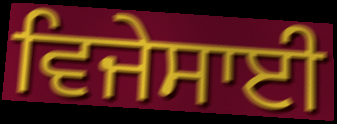
ਵਿਜੇਸਾਈ